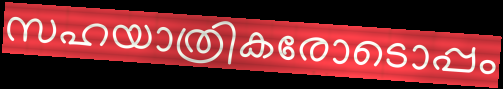
സഹയാത്രികരോടൊപ്പം